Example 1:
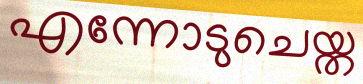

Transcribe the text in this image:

എന്നോടുചെയ്ത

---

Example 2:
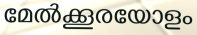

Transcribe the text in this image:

മേൽക്കൂരയോളം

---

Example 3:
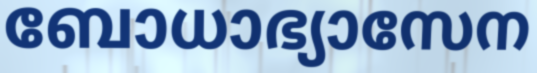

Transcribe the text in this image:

ബോധാഭ്യാസേന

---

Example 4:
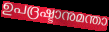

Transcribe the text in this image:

ഉപദ്രഷ്ടാനുമന്താ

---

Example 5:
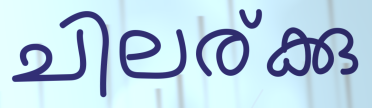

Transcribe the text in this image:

ചിലര്ക്കു